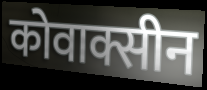
कोवाक्सीन